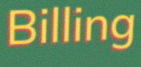
Billing